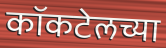
कॉकटेलच्या